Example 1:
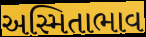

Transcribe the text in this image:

અસ્મિતાભાવ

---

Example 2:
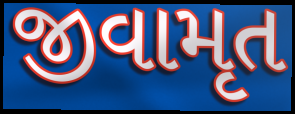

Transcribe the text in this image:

જીવામૃત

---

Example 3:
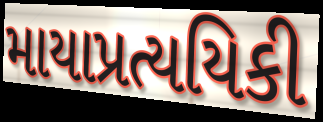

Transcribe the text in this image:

માયાપ્રત્યયિકી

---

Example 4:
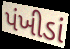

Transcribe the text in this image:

પંખીડાં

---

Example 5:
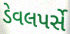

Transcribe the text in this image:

ડેવલપર્સે